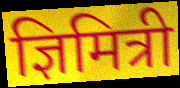
ज्ञिमित्री